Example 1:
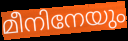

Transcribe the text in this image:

മീനിനേയും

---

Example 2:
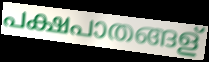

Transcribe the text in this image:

പക്ഷപാതങ്ങള്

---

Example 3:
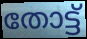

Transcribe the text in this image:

തോട്ട്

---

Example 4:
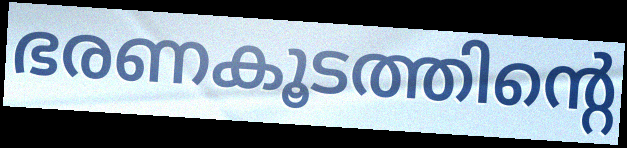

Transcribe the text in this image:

ഭരണകൂടത്തിന്റെ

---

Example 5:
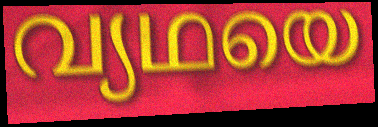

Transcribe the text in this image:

വ്യഥയെ